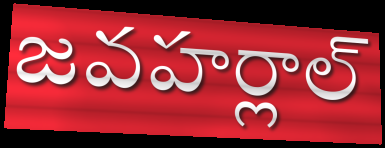
జవహర్లాల్